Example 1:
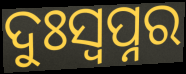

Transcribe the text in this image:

ଦୁଃସ୍ବପ୍ନର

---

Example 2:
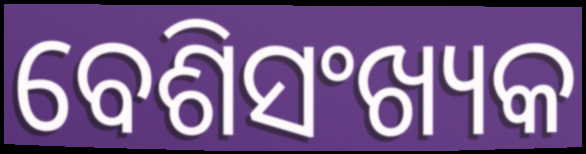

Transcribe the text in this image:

ବେଶିସଂଖ୍ୟକ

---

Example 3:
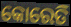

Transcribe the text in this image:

କୋରେତି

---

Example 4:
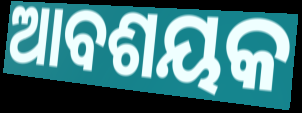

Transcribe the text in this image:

ଆବଶୟକ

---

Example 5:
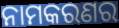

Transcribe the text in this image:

ନାମକରଣର